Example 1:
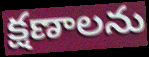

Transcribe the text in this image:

క్షణాలను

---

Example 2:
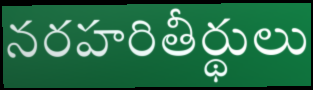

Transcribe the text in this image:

నరహరితీర్థులు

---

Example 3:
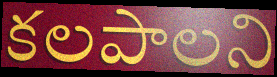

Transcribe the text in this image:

కలపాలని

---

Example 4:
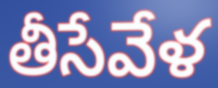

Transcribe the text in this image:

తీసేవేళ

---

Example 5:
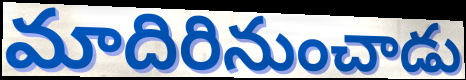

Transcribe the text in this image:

మాదిరినుంచాడు